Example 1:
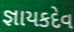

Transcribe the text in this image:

જ્ઞાયકદેવ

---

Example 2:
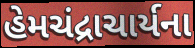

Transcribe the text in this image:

હેમચંદ્રાચાર્યના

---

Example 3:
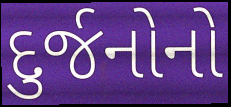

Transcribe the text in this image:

દુર્જનોનો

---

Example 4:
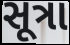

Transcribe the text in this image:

સૂત્રા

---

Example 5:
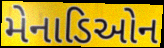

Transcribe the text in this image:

મેનાડિઓન